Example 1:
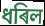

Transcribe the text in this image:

ধৰিল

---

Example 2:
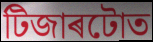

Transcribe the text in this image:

টিজাৰটোত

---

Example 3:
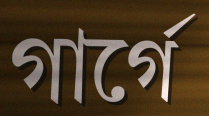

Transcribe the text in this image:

গাৰ্গে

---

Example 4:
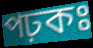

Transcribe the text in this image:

পঢ়কঃ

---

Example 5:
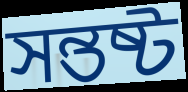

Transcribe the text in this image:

সন্তষ্ট